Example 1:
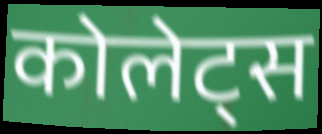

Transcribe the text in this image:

कोलेट्स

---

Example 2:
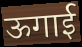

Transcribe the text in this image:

ऊगाई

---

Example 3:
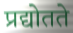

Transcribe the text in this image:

प्रद्योतते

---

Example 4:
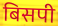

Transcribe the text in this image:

बिसपी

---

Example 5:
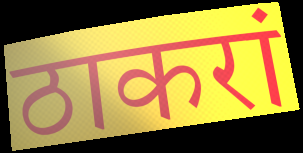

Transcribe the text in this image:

ठाकरां